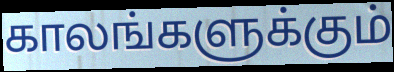
காலங்களுக்கும்